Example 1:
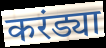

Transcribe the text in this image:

करंड्या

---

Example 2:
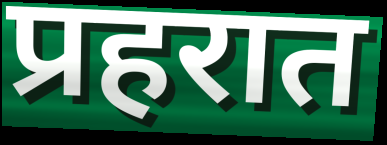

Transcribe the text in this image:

प्रहरात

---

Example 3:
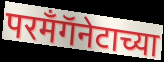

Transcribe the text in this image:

परमँगॅनेटाच्या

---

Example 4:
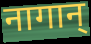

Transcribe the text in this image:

नागान्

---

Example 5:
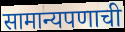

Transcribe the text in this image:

सामान्यपणाची